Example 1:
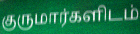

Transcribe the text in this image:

குருமார்களிடம்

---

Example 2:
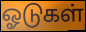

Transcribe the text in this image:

ஓடுகள்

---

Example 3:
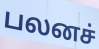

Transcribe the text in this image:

பலனச்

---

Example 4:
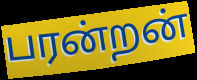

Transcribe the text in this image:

பரன்றன்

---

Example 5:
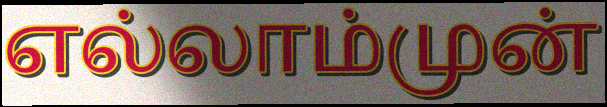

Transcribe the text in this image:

எல்லாம்முன்